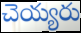
చెయ్యరు